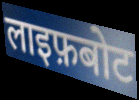
लाइफ़बोट